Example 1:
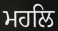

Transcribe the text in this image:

ਮਹਲਿ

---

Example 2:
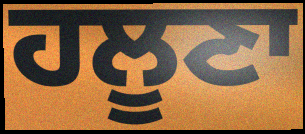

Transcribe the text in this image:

ਹਲੂਣਾ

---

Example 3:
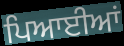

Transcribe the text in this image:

ਪਿਆਈਆਂ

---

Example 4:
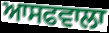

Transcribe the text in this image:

ਆਸਫਵਾਲਾ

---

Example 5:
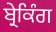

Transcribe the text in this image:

ਬ੍ਰੇਕਿੰਗ